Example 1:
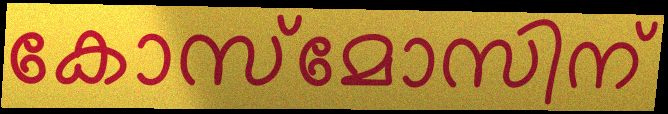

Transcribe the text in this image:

കോസ്മോസിന്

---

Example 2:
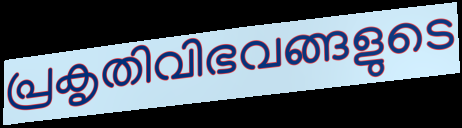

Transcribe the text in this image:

പ്രകൃതിവിഭവങ്ങളുടെ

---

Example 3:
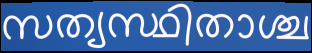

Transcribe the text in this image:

സത്യസ്ഥിതാശ്ച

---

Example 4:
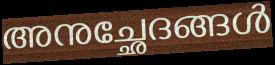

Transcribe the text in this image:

അനുച്ഛേദങ്ങൾ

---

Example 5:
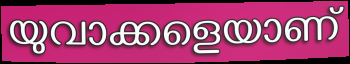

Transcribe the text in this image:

യുവാക്കളെയാണ്